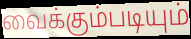
வைக்கும்படியும்